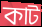
কাট